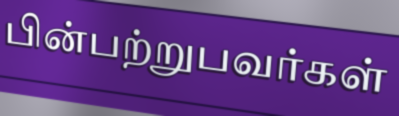
பின்பற்றுபவர்கள்